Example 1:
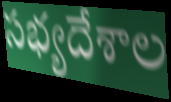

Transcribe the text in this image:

సభ్యదేశాల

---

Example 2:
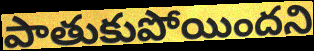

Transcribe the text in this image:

పాతుకుపోయిందని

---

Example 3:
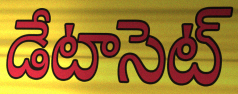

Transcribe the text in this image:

డేటాసెట్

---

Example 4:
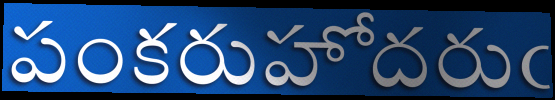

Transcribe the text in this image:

పంకరుహోదరుఁ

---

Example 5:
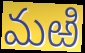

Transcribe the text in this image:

మఱి